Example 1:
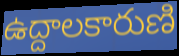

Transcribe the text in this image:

ఉద్దాలకారుణి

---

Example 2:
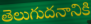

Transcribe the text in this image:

తెలుగుదనానికి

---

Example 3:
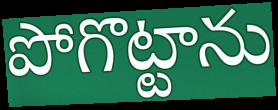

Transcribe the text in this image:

పోగొట్టాను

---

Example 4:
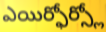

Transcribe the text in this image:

ఎయిర్ఫోర్స్లో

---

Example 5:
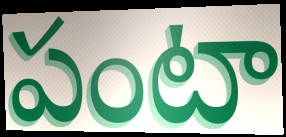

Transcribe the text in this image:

పంటా